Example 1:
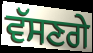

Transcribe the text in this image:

ਵੱਸਣਗੇ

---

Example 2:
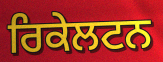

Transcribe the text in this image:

ਰਿਕੇਲਟਨ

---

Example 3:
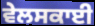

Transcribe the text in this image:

ਵੇਲਸਕਾਈ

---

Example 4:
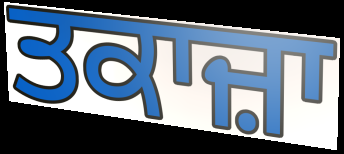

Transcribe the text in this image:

ਤਕਾਜ਼ਾ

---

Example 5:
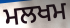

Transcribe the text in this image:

ਮਲਖਮ